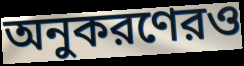
অনুকরণেরও